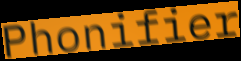
Phonifier